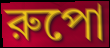
রুপো